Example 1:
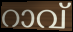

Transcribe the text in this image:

റാവ്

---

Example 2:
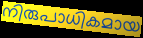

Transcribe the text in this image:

നിരുപാധികമായ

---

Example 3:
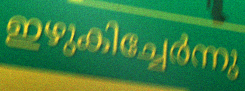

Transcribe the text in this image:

ഇഴുകിച്ചേർന്നു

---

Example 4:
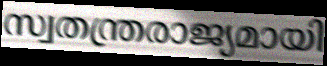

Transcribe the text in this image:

സ്വതന്ത്രരാജ്യമായി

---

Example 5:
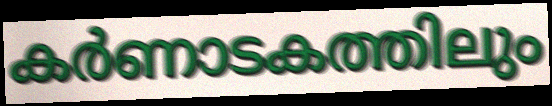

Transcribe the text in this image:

കർണാടകത്തിലും